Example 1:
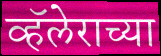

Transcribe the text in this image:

व्हॅलेराच्या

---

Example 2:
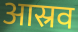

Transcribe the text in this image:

आस्रव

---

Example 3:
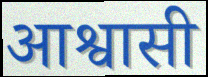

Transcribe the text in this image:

आश्वासी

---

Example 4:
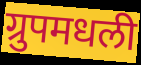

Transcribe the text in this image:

ग्रुपमधली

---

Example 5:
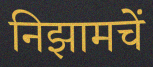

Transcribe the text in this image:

निझामचें